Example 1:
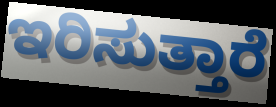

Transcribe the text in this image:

ಇರಿಸುತ್ತಾರೆ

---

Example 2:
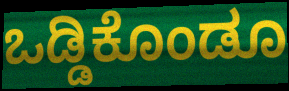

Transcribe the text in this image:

ಒಡ್ಡಿಕೊಂಡೂ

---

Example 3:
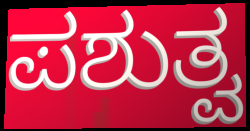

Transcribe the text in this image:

ಪಶುತ್ವ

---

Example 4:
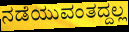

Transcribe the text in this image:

ನಡೆಯುವಂತದ್ದಲ್ಲ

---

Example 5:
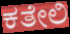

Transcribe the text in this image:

ಕತೇಲಿ